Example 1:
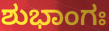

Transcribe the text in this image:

ಶುಭಾಂಗಃ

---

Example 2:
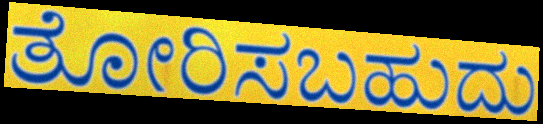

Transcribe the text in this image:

ತೋರಿಸಬಹುದು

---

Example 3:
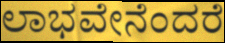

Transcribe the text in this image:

ಲಾಭವೇನೆಂದರೆ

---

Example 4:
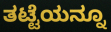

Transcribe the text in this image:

ತಟ್ಟೆಯನ್ನೂ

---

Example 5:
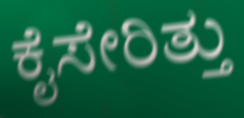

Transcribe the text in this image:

ಕೈಸೇರಿತ್ತು